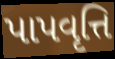
પાપવૃત્તિ